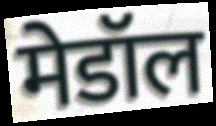
मेडॉल